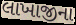
લાખાજીના